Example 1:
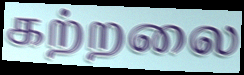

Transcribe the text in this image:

கற்றலை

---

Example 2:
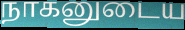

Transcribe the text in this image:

நாகனுடைய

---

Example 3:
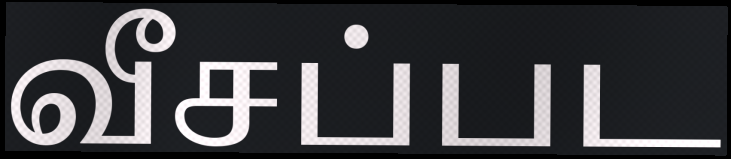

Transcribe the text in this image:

வீசப்பட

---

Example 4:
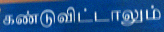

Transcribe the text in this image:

கண்டுவிட்டாலும்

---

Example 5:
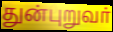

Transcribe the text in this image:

துன்புறுவர்